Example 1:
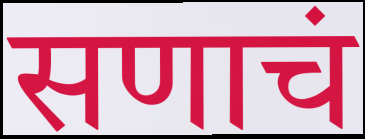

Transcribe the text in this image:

सणाचं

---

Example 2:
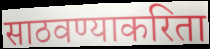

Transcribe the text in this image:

साठवण्याकरिता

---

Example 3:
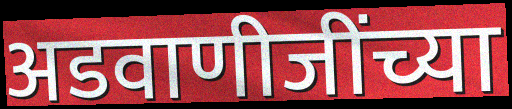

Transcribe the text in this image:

अडवाणीजींच्या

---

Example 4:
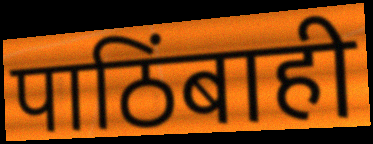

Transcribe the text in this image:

पाठिंबाही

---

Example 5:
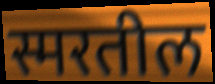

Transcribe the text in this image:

स्मरतील